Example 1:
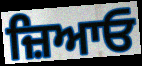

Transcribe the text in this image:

ਜ਼ਿਆਓ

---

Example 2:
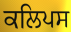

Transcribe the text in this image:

ਕਲਿਪਸ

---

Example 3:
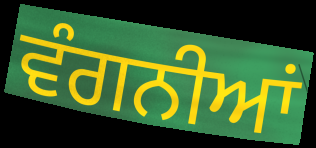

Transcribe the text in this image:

ਵੰਗਨੀਆਂ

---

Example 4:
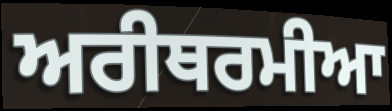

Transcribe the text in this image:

ਅਰੀਥਰਮੀਆ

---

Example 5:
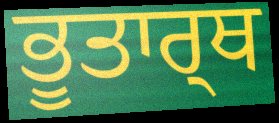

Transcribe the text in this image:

ਭੂਤਾਰ੍ਥ